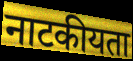
नाटकीयता